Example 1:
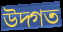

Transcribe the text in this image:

উদ্গত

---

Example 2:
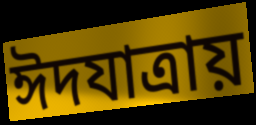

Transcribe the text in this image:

ঈদযাত্রায়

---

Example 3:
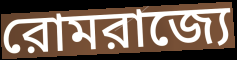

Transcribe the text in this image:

রোমরাজ্যে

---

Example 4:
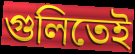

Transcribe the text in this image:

গুলিতেই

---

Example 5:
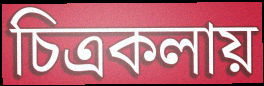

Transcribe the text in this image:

চিত্রকলায়